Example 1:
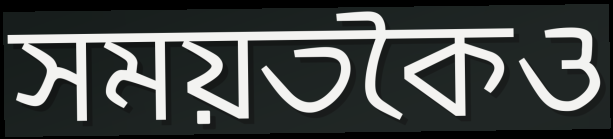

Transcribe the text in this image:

সময়তকৈও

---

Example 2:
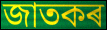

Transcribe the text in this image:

জাতকৰ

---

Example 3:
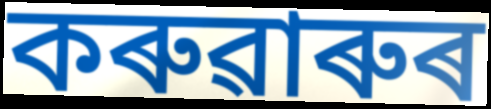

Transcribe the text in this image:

কৰুৱাৰুৰ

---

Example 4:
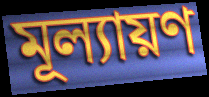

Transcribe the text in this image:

মূল্যায়ণ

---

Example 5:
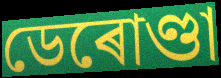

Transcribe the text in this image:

ডেৰোণ্ডা